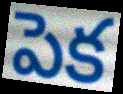
పెక